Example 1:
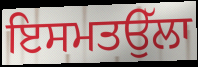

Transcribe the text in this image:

ਇਸਮਤਉੱਲਾ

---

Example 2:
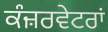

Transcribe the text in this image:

ਕੰਜ਼ਰਵੇਟਰਾਂ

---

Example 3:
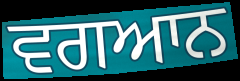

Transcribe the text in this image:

ਵਗਆਨ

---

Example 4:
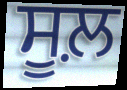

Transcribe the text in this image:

ਸੂਲ਼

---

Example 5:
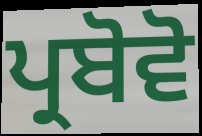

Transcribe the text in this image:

ਪ੍ਰਬੋਵੋ